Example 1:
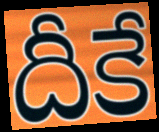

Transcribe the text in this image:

దీకే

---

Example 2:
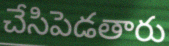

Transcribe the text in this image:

చేసిపెడతారు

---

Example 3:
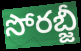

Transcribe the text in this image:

సోరబ్జీ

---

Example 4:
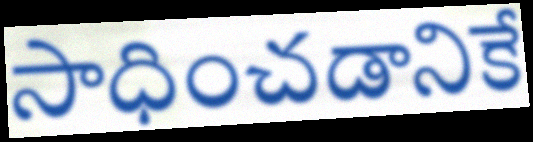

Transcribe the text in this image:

సాధించడానికే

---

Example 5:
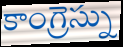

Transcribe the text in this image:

కాంగ్రెస్ను